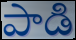
పాడి